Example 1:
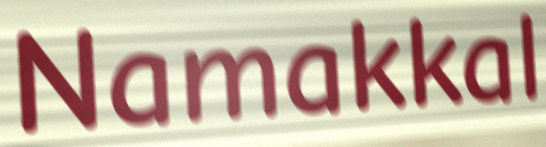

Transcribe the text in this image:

Namakkal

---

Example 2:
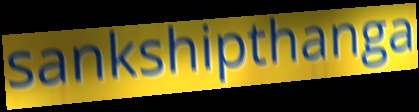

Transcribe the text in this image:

sankshipthanga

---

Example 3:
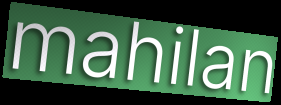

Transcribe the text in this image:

mahilan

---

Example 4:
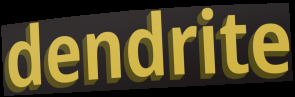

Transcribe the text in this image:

dendrite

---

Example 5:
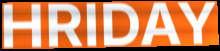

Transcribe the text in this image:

HRIDAY